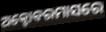
ଅକ୍ଟୋବରମାସରେ